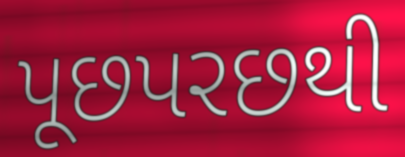
પૂછપરછથી